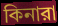
কিনারা